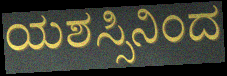
ಯಶಸ್ಸಿನಿಂದ